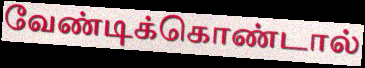
வேண்டிக்கொண்டால்